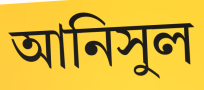
আনিসুল